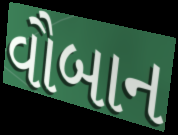
વૌબાન